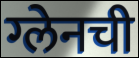
ग्लेनची